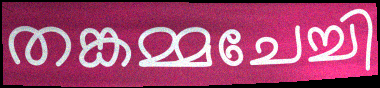
തങ്കമ്മചേച്ചി